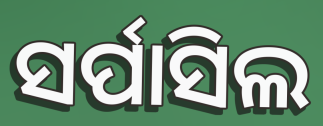
ସର୍ପାସିଲ